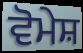
ਵੋਮੇਸ਼